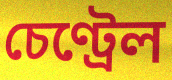
চেণ্ট্ৰেল